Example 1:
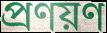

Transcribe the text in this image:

প্রণয়ণ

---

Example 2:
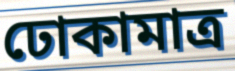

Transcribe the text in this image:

ঢোকামাত্র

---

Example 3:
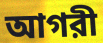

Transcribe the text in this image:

আগরী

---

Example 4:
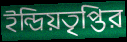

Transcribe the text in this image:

ইন্দ্রিয়তৃপ্তির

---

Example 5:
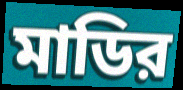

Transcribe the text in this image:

মাডির